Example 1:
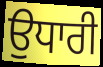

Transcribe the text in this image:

ਉਧਾਰੀ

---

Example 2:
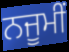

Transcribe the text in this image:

ਨਜੂਮੀਂ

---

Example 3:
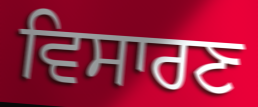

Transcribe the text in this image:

ਵਿਸਾਰਣ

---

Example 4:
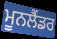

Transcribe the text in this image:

ਮੂਨਲੈਂਡਰ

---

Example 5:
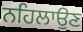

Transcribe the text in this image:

ਨਹਿਲਾਉਣ